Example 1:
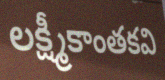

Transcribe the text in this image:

లక్ష్మీకాంతకవి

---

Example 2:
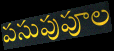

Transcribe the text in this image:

పసుపుపూల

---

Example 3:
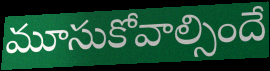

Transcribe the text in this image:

మూసుకోవాల్సిందే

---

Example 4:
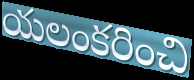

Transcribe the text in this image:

యలంకరించి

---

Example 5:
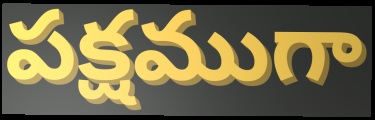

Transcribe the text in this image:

పక్షముగా